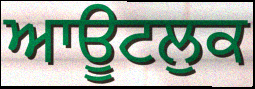
ਆਊਟਲੁਕ